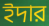
ইদার